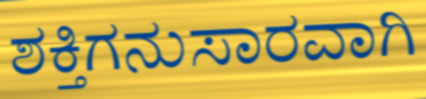
ಶಕ್ತಿಗನುಸಾರವಾಗಿ